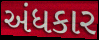
અંધકાર